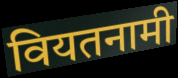
वियतनामी